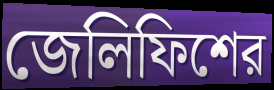
জেলিফিশের